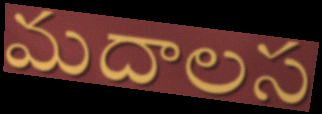
మదాలస